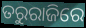
ତରୁରାଜିରେ